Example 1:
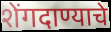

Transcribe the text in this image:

शेंगदाण्याचे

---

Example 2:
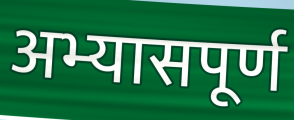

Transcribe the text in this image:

अभ्यासपूर्ण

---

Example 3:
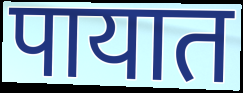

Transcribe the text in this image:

पायात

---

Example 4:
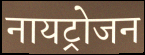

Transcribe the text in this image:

नायट्रोजन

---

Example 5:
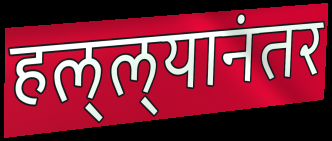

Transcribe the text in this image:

हल्ल्यानंतर